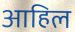
आहिल